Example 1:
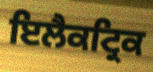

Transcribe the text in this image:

ਇਲੈਕਟ੍ਰਿਕ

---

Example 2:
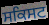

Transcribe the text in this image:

ਸਕਿਸਟ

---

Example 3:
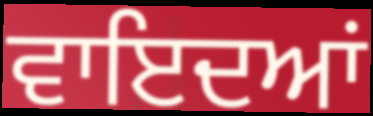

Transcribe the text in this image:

ਵਾਇਦਆਂ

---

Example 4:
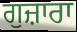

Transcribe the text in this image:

ਗੁਜ਼ਾਰਾ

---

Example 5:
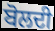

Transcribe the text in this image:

ਬੋਲਦੀ